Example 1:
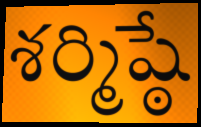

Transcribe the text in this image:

శర్మిష్ఠే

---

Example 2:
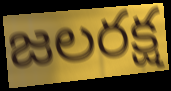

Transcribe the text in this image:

జలరక్ష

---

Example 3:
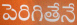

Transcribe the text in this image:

పెరిగితేనే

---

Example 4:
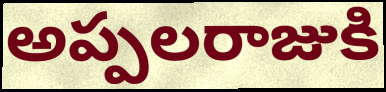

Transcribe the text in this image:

అప్పలరాజుకి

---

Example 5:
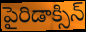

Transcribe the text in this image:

పైరిడాక్సిన్